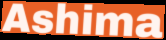
Ashima